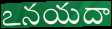
ఽనయదా